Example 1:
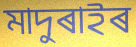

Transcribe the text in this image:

মাদুৰাইৰ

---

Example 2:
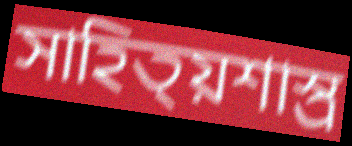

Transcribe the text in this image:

সাহিত্য়শাস্ত্ৰ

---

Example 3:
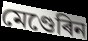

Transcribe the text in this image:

মেণ্ডেৰিন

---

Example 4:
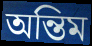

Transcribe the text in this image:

অন্তিম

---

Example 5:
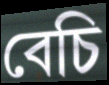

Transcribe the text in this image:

বেচি